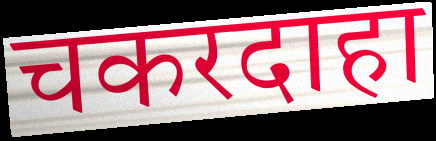
चकरदाहा